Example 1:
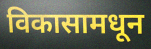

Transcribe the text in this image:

विकासामधून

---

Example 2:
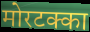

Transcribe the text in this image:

मोरटक्का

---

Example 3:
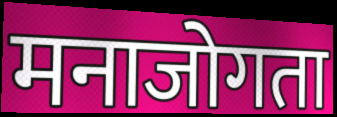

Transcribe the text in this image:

मनाजोगता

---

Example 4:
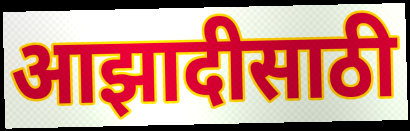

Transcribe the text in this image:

आझादीसाठी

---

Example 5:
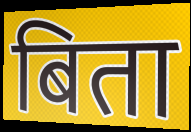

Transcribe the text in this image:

बिता